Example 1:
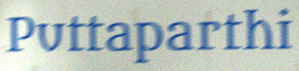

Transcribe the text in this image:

Puttaparthi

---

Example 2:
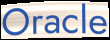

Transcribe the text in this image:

Oracle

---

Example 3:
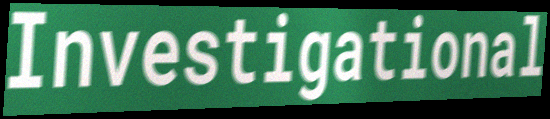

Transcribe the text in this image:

Investigational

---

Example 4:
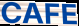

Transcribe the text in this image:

CAFE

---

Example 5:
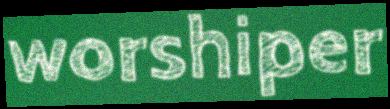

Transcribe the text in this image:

worshiper